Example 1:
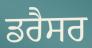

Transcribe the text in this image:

ਡਰੈਸਰ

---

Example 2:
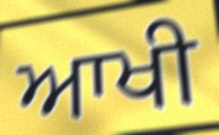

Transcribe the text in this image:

ਆਖੀ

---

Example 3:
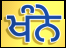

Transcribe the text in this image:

ਖੰਨੇ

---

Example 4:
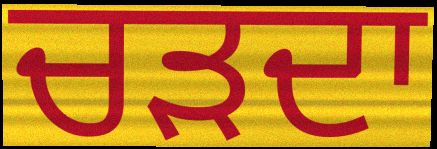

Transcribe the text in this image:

ਚੜਦਾ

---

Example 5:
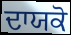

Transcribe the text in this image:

ਦਾਯਕੋ